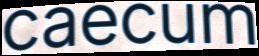
caecum